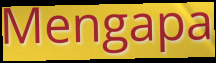
Mengapa